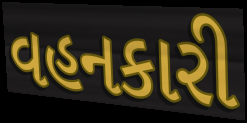
વહનકારી